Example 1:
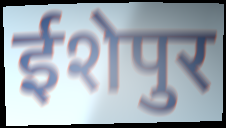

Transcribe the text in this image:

ईशेपुर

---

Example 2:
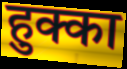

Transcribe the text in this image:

हुक्का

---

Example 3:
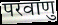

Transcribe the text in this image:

परवाणु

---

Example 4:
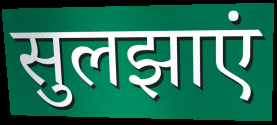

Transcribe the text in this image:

सुलझाएं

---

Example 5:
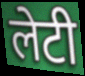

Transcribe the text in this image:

लेटी